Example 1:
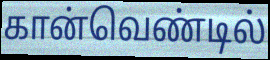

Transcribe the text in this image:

கான்வெண்டில்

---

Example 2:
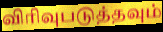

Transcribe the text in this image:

விரிவுபடுத்தவும்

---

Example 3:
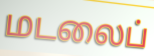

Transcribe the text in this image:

மடலைப்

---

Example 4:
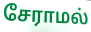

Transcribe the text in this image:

சேராமல்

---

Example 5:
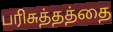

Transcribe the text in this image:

பரிசுத்தத்தை